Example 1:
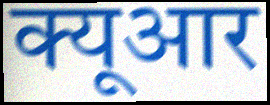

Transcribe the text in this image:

क्‍यूआर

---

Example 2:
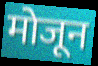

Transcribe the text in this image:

मोजून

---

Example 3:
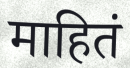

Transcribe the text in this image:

माहितं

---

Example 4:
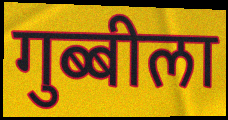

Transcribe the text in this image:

गुब्बीला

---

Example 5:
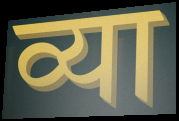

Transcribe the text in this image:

व्या